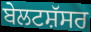
ਬੇਲਟਸ਼ੱਸਰ